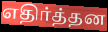
எதிர்த்தன